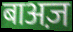
बाअज़